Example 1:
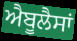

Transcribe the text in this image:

ਐਬੂਲੈਸਾਂ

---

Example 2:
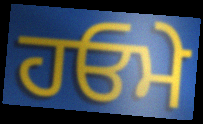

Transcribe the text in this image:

ਹਓਮੇ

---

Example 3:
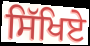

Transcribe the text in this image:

ਸਿੱਖਿਏ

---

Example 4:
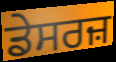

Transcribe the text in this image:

ਡੇਸਰਜ਼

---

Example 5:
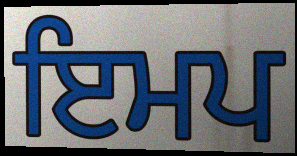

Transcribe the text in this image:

ਇਮਪ